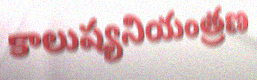
కాలుష్యనియంత్రణ